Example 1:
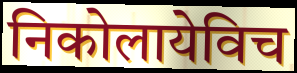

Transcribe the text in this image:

निकोलायेविच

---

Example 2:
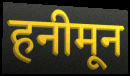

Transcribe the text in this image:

हनीमून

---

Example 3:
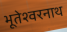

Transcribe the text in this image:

भूतेश्वरनाथ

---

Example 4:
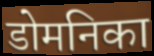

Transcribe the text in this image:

डोमनिका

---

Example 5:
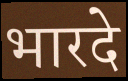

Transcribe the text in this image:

भारदे